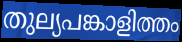
തുല്യപങ്കാളിത്തം